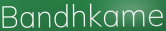
Bandhkame